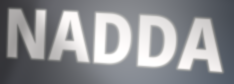
NADDA